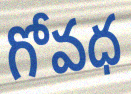
గోవధ